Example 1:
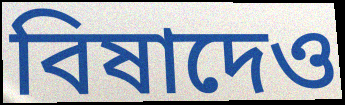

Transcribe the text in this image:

বিষাদেও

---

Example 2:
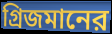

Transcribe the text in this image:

গ্রিজমানের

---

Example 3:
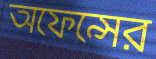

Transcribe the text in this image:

অফেন্সের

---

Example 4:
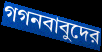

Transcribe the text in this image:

গগনবাবুদের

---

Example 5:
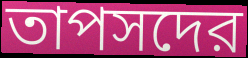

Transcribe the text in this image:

তাপসদের